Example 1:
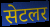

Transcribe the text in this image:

सेटलर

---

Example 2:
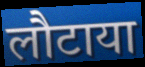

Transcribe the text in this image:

लौटाया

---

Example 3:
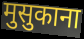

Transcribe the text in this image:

मुसुकाना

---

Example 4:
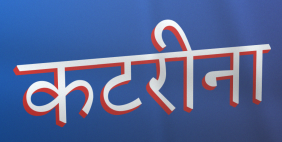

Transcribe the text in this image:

कटरीना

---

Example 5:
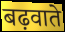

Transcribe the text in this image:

बढ़वाते